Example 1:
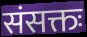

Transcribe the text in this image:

संसक्तः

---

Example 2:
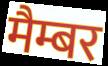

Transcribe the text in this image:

मैम्बर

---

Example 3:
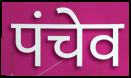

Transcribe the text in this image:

पंचेव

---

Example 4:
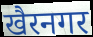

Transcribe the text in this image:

खैरनगर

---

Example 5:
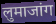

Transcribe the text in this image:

लुमाजांग